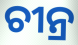
ଚୀନ୍ର